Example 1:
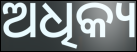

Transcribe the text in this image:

ଅଧିକ୍ୟ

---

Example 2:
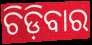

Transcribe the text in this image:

ଚିଡ଼ିବାର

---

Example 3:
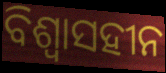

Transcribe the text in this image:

ବିଶ୍ୱାସହୀନ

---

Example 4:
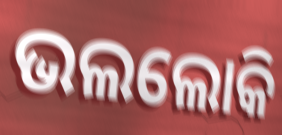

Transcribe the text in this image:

ଭଲଲୋକି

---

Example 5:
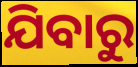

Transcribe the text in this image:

ଯିବାରୁ